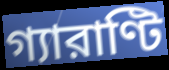
গ্যারাণ্টি